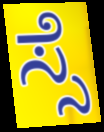
ಸ್ಸೆ